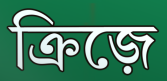
ক্রিজ়ে